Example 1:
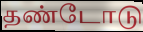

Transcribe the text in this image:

தண்டோடு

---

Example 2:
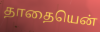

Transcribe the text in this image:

தாதையென்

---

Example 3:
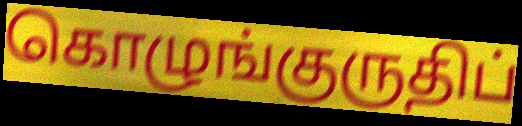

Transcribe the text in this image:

கொழுங்குருதிப்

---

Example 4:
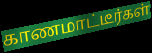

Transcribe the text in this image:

காணமாட்டீர்கள்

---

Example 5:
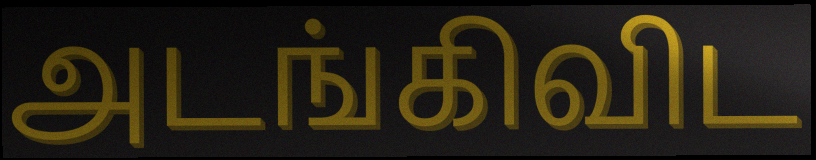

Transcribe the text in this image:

அடங்கிவிட